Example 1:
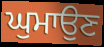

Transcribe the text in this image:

ਘੁਮਾਉਣ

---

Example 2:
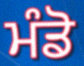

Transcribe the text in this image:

ਮੰਡੋ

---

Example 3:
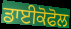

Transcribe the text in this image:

ਡਾਈਕੋਫੋਲ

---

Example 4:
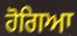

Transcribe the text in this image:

ਹੋਗਿਆ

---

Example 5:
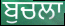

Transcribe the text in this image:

ਬੁਚਲਾ